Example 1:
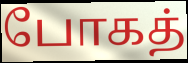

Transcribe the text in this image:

போகத்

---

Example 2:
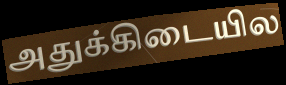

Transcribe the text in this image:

அதுக்கிடையில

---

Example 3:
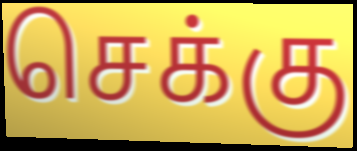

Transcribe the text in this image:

செக்கு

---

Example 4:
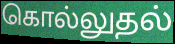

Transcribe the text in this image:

கொல்லுதல்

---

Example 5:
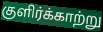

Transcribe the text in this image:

குளிர்க்காற்று